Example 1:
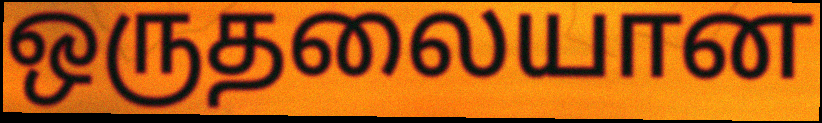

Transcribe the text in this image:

ஒருதலையான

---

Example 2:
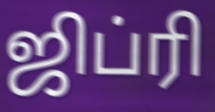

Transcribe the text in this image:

ஜிப்ரி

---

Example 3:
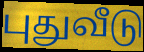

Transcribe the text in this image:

புதுவீடு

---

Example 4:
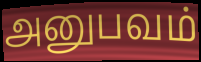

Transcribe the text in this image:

அனுபவம்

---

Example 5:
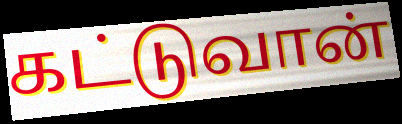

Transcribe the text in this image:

கட்டுவான்